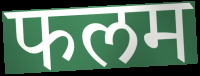
फलम